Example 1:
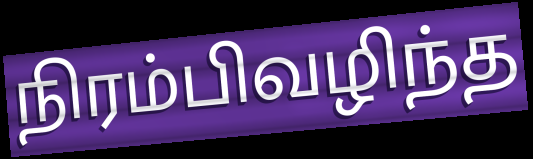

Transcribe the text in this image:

நிரம்பிவழிந்த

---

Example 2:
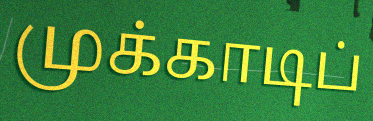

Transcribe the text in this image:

முக்காடிப்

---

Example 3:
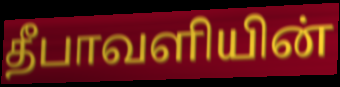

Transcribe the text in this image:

தீபாவளியின்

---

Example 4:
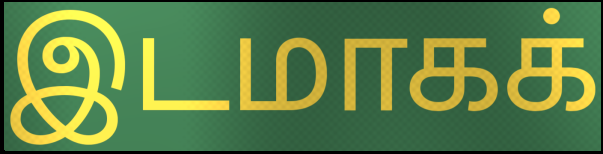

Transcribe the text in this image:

இடமாகக்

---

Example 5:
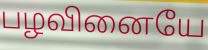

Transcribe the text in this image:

பழவினையே